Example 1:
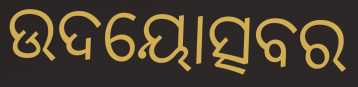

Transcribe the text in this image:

ଉଦୟୋତ୍ସବର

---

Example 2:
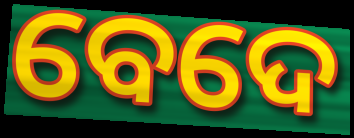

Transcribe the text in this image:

ବେଦେ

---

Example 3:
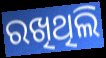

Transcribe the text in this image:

ରଖିଥିଲି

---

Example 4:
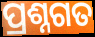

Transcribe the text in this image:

ପ୍ରଶ୍ନଗତ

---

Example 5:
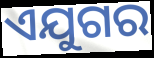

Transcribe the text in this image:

ଏଯୁଗର